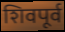
शिवपूर्व